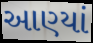
આણ્યાં